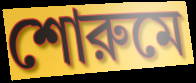
শোরুমে